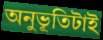
অনুভূতিটাই